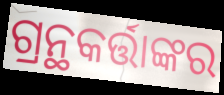
ଗ୍ରନ୍ଥକର୍ତ୍ତାଙ୍କର